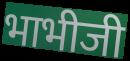
भाभीजी